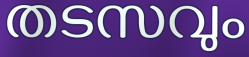
തടസവും